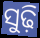
ସୁଢ଼ି